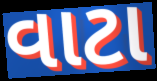
વાટા